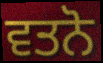
ਵਤਨੋ